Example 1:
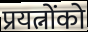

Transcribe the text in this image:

प्रयत्नोंको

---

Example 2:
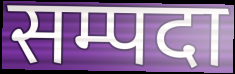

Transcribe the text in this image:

सम्पदा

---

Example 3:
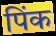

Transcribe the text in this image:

पिंक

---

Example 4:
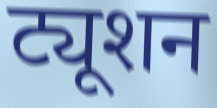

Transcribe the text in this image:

ट्यूशन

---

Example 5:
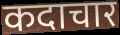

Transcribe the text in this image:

कदाचार